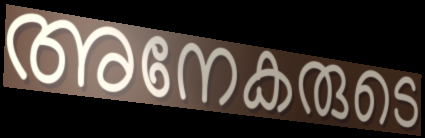
അനേകരുടെ